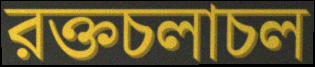
রক্তচলাচল